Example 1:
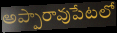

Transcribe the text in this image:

అప్పారావుపేటలో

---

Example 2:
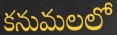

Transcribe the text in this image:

కనుమలలో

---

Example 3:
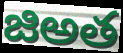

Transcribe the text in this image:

జిఅత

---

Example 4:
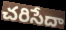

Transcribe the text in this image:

చరిసేదా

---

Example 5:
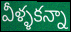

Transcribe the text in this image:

వీళ్ళకన్నా